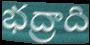
భద్రాది